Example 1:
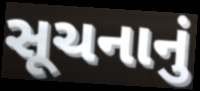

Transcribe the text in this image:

સૂચનાનું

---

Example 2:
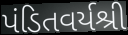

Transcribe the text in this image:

પંડિતવર્યશ્રી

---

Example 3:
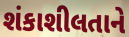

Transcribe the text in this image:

શંકાશીલતાને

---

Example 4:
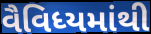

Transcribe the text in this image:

વૈવિધ્યમાંથી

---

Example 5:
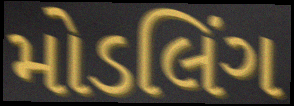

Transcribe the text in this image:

મોડલિંગ